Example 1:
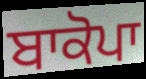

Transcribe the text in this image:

ਬਾਕੋਪਾ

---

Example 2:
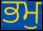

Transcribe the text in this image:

ਭਮੁ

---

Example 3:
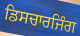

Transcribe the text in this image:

ਡਿਸਚਾਰਜਿੰਗ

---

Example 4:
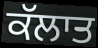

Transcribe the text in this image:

ਕੱਲਾਤ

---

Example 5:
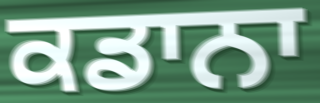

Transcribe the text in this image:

ਕਡਾਨਾ